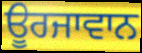
ਊਰਜਾਵਾਨ